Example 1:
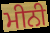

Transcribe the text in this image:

ਮੀਨੀ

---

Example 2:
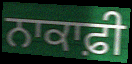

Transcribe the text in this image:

ਨਾਕਾਫ਼ੀ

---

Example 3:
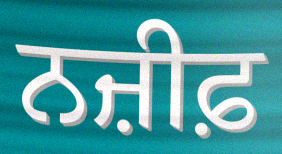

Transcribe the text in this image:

ਨਜ਼ੀਫ਼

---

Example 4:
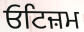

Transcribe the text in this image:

ਓਟਿਜ਼ਮ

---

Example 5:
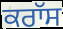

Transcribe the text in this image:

ਕਰਾੱਸ